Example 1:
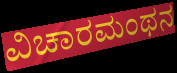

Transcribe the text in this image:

ವಿಚಾರಮಂಥನ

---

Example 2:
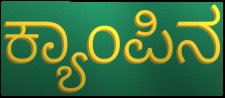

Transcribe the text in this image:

ಕ್ಯಾಂಪಿನ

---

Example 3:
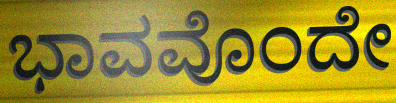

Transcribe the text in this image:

ಭಾವವೊಂದೇ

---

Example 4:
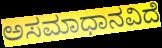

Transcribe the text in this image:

ಅಸಮಾಧಾನವಿದೆ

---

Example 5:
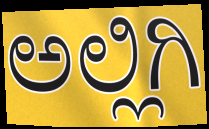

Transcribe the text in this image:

ಅಲ್ಲಿಗಿ